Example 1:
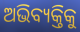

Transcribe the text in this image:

ଅଭିବ୍ୟକ୍ତିକୁ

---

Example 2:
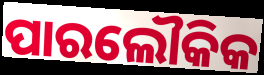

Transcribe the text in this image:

ପାରଲୌକିକ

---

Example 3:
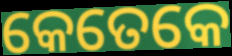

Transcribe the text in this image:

କେତେକେ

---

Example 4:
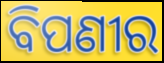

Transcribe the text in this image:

ବିପଣୀର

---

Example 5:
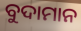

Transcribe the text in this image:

ବୁଦାମାନ